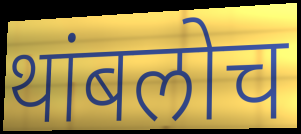
थांबलोच